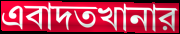
এবাদতখানার